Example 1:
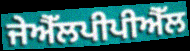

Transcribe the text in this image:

ਜੇਐੱਲਪੀਪੀਐੱਲ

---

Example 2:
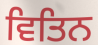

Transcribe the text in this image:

ਵਿਤਿਨ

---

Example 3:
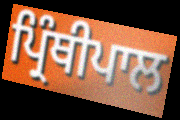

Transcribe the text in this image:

ਪ੍ਰਿੰਥੀਪਾਲ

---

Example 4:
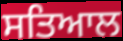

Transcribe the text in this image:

ਸਤਿਆਲ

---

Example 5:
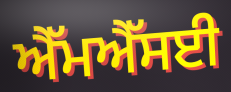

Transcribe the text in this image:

ਐੱਮਐੱਸਈ